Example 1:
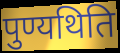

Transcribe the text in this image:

पुण्यथिति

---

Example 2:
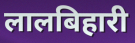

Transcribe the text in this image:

लालबिहारी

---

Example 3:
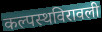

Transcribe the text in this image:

कल्पस्थविरावली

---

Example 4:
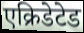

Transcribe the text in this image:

एक्रिडेटेड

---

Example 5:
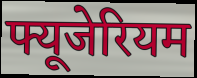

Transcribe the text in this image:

फ्यूजेरियम